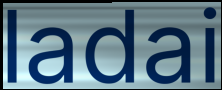
ladai